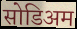
सोडिअम